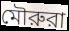
মৌরুরা